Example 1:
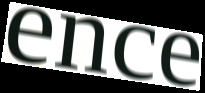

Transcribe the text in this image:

ence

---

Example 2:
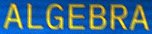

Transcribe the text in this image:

ALGEBRA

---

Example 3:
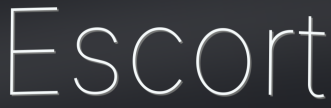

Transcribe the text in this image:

Escort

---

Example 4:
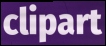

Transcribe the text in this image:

clipart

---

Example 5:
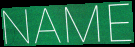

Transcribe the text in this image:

NAME